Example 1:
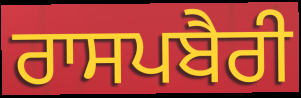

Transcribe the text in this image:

ਰਾਸਪਬੈਰੀ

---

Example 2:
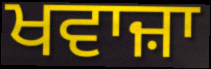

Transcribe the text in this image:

ਖਵਾਜ਼ਾ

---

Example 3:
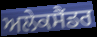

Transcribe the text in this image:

ਅਲੇਕਸੈਂਡਰ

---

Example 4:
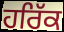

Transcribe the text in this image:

ਹਰਿੱਕ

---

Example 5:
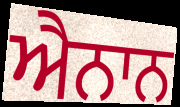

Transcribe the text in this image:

ਐਨਾਨ